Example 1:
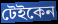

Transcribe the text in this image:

টেইকেন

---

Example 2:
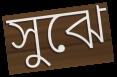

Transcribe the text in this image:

সুঝে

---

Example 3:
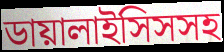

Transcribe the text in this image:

ডায়ালাইসিসসহ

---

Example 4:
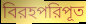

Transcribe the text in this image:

বিরহপরিপূত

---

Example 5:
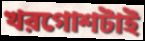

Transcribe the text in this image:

খরগোশটাই